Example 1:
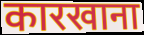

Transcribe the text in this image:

कारखाना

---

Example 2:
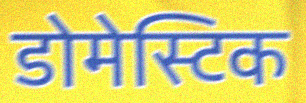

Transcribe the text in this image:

डोमेस्टिक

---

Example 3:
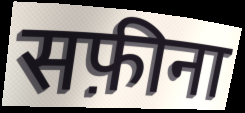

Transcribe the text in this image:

सफ़ीना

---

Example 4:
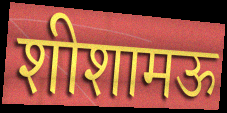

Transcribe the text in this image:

शीशामऊ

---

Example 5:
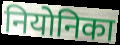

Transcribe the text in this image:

नियोनिका